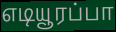
எடியூரப்பா